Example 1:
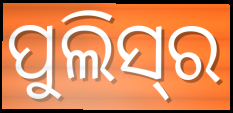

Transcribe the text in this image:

ପୁଲିସ୍‍ର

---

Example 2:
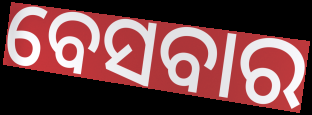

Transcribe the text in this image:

ବେସବାର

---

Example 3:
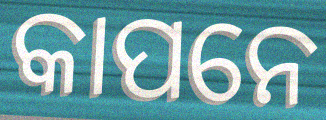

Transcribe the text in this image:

କାପନେ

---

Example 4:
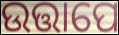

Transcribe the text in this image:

ଉତ୍ତାପେ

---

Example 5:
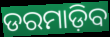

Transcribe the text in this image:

ଡରମାଡ଼ିବ